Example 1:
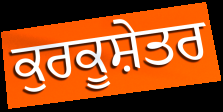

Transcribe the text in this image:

ਕੁਰਕੂਸ਼ੇਤਰ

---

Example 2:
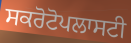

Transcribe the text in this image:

ਸਕਰੋਟੋਪਲਾਸਟੀ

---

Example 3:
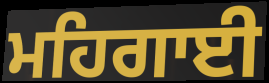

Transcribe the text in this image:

ਮਹਿਗਾਈ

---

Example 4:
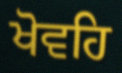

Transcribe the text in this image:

ਖੋਵਹਿ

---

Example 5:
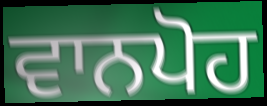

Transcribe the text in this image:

ਵਾਨਪੋਹ